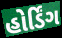
હોર્ડિંગ